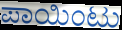
ಪಾಯಿಂಟು